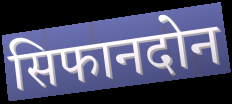
सिफानदोन